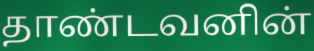
தாண்டவனின்